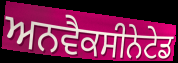
ਅਨਵੈਕਸੀਨੇਟੇਡ